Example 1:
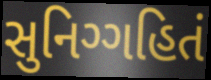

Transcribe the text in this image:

સુનિગ્ગહિતં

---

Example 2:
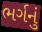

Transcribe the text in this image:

ભર્ગનું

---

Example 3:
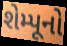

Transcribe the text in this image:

શેમ્પૂનો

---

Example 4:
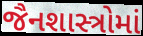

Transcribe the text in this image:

જૈનશાસ્ત્રોમાં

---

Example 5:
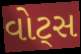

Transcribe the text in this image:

વોટ્સ